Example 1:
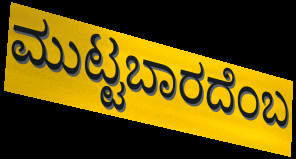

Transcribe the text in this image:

ಮುಟ್ಟಬಾರದೆಂಬ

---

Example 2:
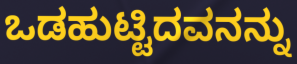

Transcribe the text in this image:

ಒಡಹುಟ್ಟಿದವನನ್ನು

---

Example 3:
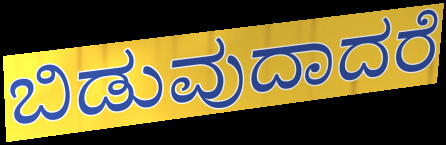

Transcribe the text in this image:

ಬಿಡುವುದಾದರೆ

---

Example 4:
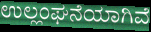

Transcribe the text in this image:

ಉಲ್ಲಂಘನೆಯಾಗಿವೆ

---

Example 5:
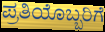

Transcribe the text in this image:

ಪ್ರತಿಯೊಬ್ಬರಿಗೆ